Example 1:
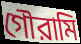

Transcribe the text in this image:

গৌরামি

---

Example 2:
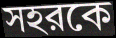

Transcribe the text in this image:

সহরকে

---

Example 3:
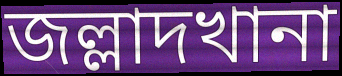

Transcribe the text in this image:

জল্লাদখানা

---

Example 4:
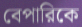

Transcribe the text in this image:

বেপারিকে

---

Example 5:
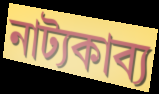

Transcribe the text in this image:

নাট্যকাব্য